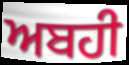
ਅਬਹੀ